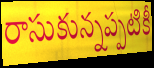
రాసుకున్నప్పటికీ